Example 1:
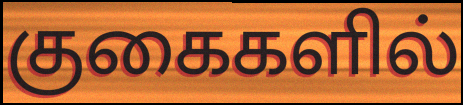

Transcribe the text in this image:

குகைகளில்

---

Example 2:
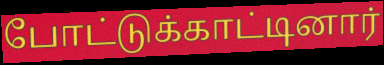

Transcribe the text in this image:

போட்டுக்காட்டினார்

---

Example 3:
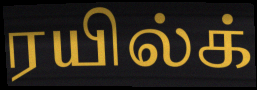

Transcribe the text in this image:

ரயில்க்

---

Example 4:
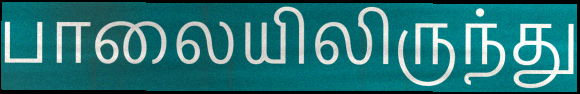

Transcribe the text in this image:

பாலையிலிருந்து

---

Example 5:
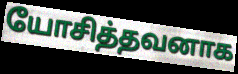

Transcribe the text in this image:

யோசித்தவனாக